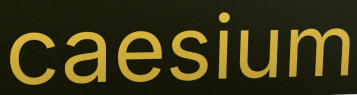
caesium